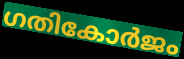
ഗതികോർജം